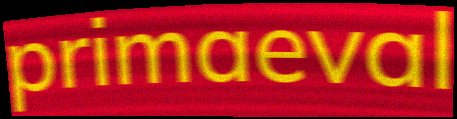
primaeval